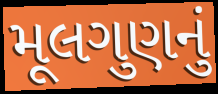
મૂલગુણનું